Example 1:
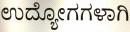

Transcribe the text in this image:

ಉದ್ಯೋಗಗಳಾಗಿ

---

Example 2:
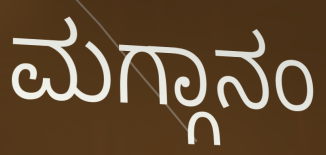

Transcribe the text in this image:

ಮಗ್ಗಾನಂ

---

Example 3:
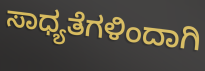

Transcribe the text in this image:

ಸಾಧ್ಯತೆಗಳಿಂದಾಗಿ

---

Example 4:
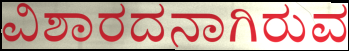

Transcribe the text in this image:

ವಿಶಾರದನಾಗಿರುವ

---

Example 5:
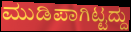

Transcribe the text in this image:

ಮುಡಿಪಾಗಿಟ್ಟದ್ದು